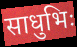
साधुभिः